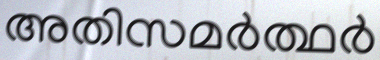
അതിസമർത്ഥർ